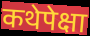
कथेपेक्षा